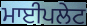
ਮਾਈਪਲੇਟ